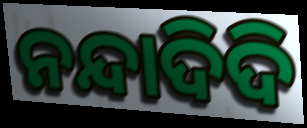
ନନ୍ଦାଦିଦି